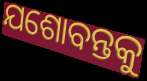
ଯଶୋବନ୍ତକୁ